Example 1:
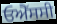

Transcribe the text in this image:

ਓਐੱਸਸੀ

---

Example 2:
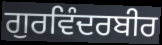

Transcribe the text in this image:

ਗੁਰਵਿੰਦਰਬੀਰ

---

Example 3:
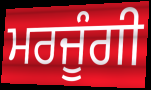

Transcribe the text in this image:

ਮਰਜੂੰਗੀ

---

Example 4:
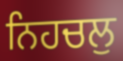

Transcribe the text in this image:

ਨਿਹਚਲੁ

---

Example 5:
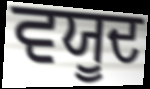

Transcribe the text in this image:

ਵਯੂਦ